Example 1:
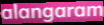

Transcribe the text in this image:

alangaram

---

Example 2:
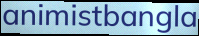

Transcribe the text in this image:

animistbangla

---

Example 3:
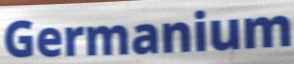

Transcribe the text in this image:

Germanium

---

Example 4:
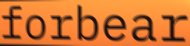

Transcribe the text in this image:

forbear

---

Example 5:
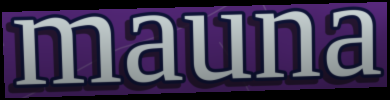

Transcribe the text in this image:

mauna